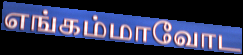
எங்கம்மாவோட